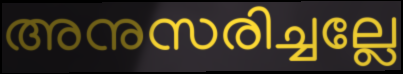
അനുസരിച്ചല്ലേ